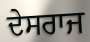
ਦੇਸਰਾਜ